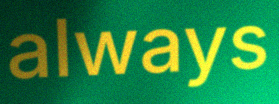
always